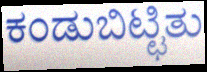
ಕಂಡುಬಿಟ್ಟಿತು